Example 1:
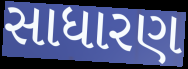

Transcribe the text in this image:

સાધારણ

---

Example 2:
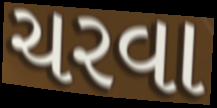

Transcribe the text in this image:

ચરવા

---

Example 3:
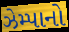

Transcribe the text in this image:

ઝેમ્પાનો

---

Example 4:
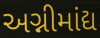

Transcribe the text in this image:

અગ્નીમાંદ્ય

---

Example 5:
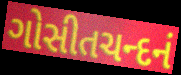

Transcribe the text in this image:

ગોસીતચન્દનં